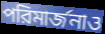
পরিমার্জনাও